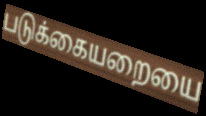
படுக்கையறையை